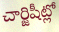
చార్జిషీట్లో